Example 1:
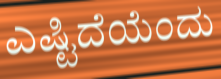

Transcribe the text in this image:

ಎಷ್ಟಿದೆಯೆಂದು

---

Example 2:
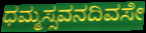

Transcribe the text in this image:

ಧಮ್ಮಸ್ಸವನದಿವಸೇ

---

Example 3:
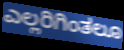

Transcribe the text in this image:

ಎಲ್ಲರಿಗಿಂತಲೂ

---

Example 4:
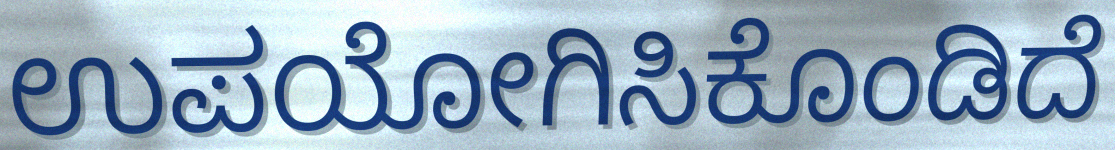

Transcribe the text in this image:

ಉಪಯೋಗಿಸಿಕೊಂಡಿದೆ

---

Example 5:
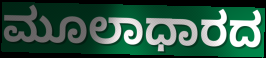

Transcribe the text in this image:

ಮೂಲಾಧಾರದ